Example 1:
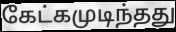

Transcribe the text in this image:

கேட்கமுடிந்தது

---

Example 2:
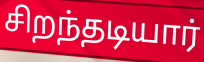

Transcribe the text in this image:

சிறந்தடியார்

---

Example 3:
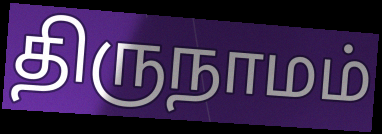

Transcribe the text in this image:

திருநாமம்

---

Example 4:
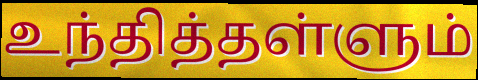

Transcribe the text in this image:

உந்தித்தள்ளும்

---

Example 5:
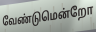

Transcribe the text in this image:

வேண்டுமென்றோ